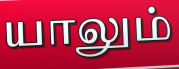
யாலும்